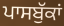
ਪਾਸਬੁੱਕਾਂ